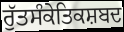
ਰੁੱਤਸੰਕੇਤਿਕਸ਼ਬਦ